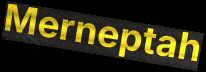
Merneptah